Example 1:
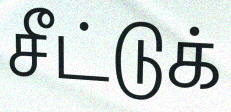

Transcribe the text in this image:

சீட்டுக்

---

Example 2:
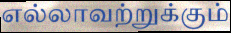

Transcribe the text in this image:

எல்லாவற்றுக்கும்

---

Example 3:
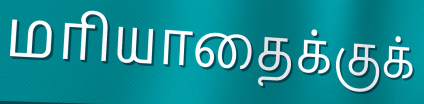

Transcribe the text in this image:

மரியாதைக்குக்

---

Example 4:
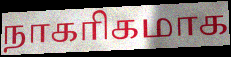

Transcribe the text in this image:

நாகரிகமாக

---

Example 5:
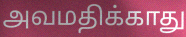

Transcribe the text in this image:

அவமதிக்காது